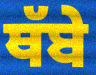
ਥੱਬੇ